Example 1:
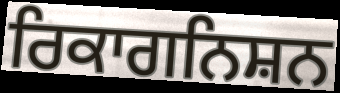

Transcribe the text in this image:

ਰਿਕਾਗਨਿਸ਼ਨ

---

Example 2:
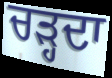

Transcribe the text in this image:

ਚੜ੍ਹਦਾ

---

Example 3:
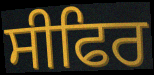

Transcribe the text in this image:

ਸੀਫਿਰ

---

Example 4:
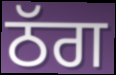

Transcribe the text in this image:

ਠੱਗ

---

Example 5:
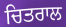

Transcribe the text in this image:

ਚਿਤਰਾਲ